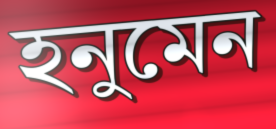
হনুমেন